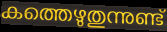
കത്തെഴുതുന്നുണ്ട്